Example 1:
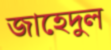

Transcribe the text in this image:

জাহেদুল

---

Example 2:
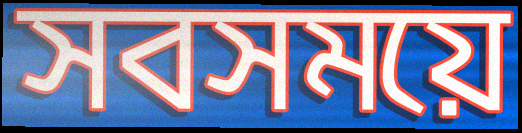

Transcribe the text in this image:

সবসময়ে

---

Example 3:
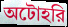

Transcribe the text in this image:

অটোহরি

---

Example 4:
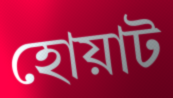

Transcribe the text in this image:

হোয়াট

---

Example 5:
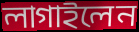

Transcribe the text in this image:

লাগাইলেন